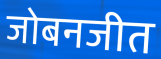
जोबनजीत